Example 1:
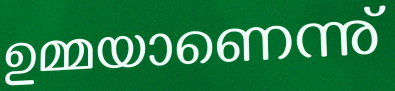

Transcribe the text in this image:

ഉമ്മയാണെന്നു്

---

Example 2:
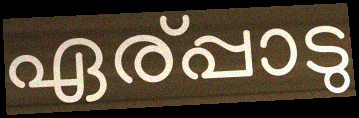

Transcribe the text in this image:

ഏര്പ്പാടു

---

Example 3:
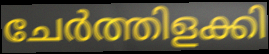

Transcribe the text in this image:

ചേർത്തിളക്കി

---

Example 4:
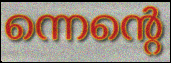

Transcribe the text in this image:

ന്നെന്റെ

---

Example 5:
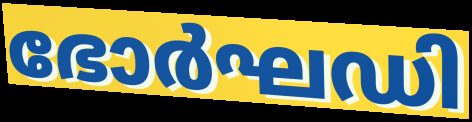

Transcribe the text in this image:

ഭോർഘഡി